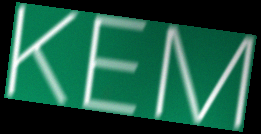
KEM